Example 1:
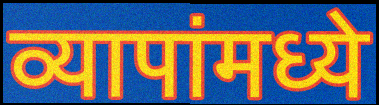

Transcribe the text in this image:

व्यापांमध्ये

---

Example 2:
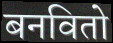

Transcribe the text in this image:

बनवितो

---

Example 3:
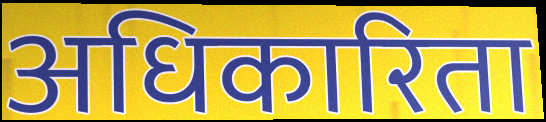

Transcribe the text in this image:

अधिकारिता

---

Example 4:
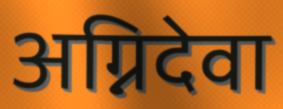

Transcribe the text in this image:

अग्निदेवा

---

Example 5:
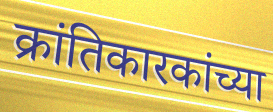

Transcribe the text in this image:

क्रांतिकारकांच्या